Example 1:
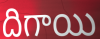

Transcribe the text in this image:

దిగాయి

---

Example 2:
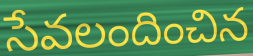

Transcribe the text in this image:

సేవలందించిన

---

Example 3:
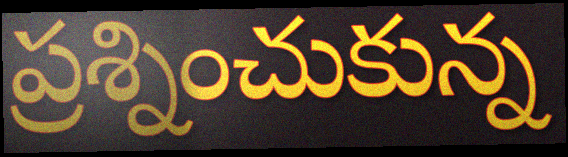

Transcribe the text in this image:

ప్రశ్నించుకున్న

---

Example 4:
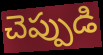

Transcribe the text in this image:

చెప్పుడి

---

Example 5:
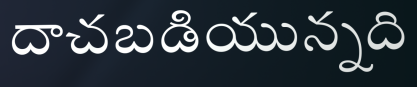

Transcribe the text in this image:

దాచబడియున్నది